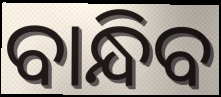
ବାନ୍ଧିବ